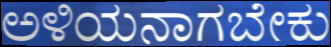
ಅಳಿಯನಾಗಬೇಕು